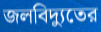
জলবিদ্যুতের